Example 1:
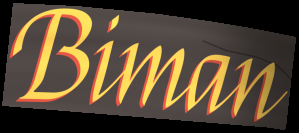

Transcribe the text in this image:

Biman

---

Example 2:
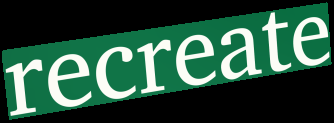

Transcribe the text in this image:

recreate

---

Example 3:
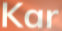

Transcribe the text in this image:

Kar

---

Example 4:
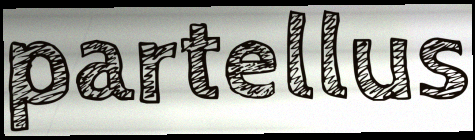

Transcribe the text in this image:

partellus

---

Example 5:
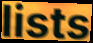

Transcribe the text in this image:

lists